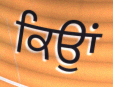
ਕਿਉਾਂ